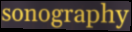
sonography